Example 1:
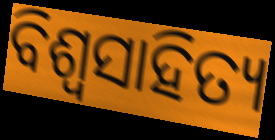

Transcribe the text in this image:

ବିଶ୍ଵସାହିତ୍ୟ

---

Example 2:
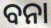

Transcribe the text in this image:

ବନା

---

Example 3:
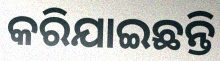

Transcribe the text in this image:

କରିଯାଇଛନ୍ତି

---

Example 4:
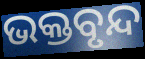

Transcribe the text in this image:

ଭକ୍ତବୃନ୍ଦ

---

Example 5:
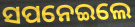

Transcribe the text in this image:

ସପନେଇଲେ